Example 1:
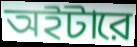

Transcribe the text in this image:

অইটারে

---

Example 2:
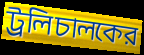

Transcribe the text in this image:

ট্রলিচালকের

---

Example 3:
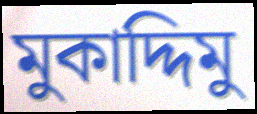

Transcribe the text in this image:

মুকাদ্দিমু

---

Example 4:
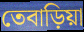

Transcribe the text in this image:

তেবাড়িয়া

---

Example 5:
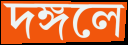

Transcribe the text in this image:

দঙ্গলে